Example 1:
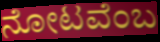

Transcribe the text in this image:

ನೋಟವೆಂಬ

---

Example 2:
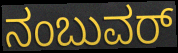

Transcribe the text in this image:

ನಂಬುವರ್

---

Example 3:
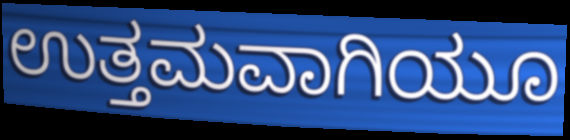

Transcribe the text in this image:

ಉತ್ತಮವಾಗಿಯೂ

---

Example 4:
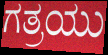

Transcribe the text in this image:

ಗತ್ರಯು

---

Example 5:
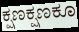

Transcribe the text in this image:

ಕ್ಷಣಕ್ಷಣಕೂ